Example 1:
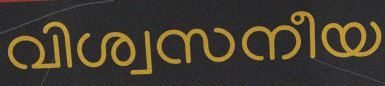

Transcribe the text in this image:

വിശ്വസനീയ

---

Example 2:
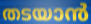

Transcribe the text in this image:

തടയാൻ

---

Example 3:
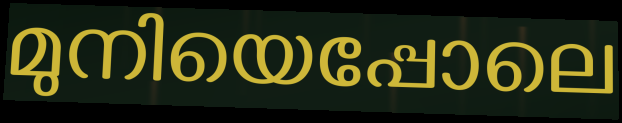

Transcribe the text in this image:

മുനിയെപ്പോലെ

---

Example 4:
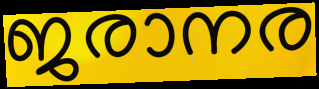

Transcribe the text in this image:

ജരാനര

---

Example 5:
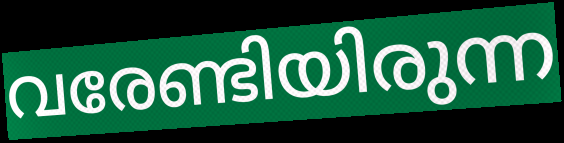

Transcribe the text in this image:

വരേണ്ടിയിരുന്ന